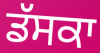
ਡੱਸਕਾ